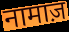
नामाज़